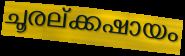
ചൂരല്ക്കഷായം